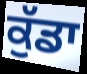
ਕੁੱਡਾ